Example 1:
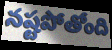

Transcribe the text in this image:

నష్టపోతోంది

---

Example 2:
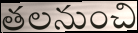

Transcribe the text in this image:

తలనుంచి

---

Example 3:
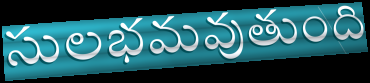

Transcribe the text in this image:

సులభమవుతుంది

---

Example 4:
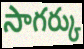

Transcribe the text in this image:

సాగర్కు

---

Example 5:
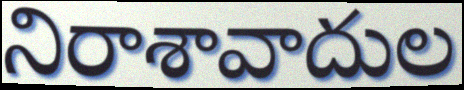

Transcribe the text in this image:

నిరాశావాదుల